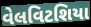
વેલવિટશિયા